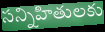
సన్నిహితులకు